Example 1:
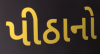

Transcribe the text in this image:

પીઠાનો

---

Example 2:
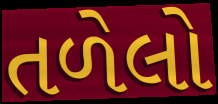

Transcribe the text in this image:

તળેલો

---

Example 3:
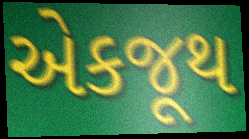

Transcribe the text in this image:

એકજૂથ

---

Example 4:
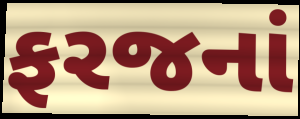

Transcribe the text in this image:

ફરજનાં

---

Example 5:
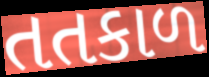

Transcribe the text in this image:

તતકાળ